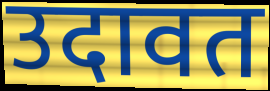
उदावत